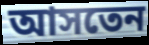
আসতেন